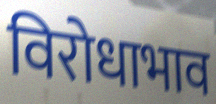
विरोधाभाव